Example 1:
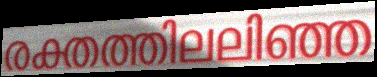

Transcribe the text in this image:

രക്തത്തിലലിഞ്ഞ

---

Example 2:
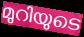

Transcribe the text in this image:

മുറിയുടെ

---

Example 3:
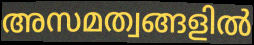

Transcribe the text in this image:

അസമത്വങ്ങളിൽ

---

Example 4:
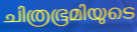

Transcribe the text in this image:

ചിത്രഭൂമിയുടെ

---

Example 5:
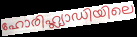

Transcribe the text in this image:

ഹോരിഹ്ല്യാഡിയിലെ